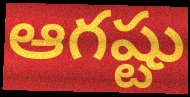
ఆగష్టు